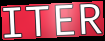
ITER